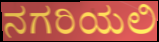
ನಗರಿಯಲಿ